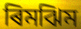
ৰিমঝিম